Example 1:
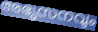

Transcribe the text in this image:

അഭ്യസനവും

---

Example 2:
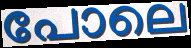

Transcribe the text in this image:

പോലെ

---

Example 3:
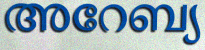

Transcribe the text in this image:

അറേബ്യ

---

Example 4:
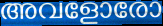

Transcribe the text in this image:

അവളോരോ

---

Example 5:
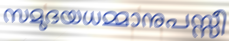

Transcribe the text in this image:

സമുദയധമ്മാനുപസ്സീ